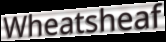
Wheatsheaf